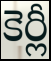
కెర్లీ